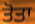
ਤੋਤਾ